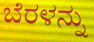
ಬೆರಳನ್ನು